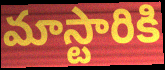
మాస్టారికి